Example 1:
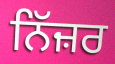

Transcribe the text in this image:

ਨਿੱਜ਼ਰ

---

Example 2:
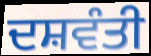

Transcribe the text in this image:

ਦਸ਼ਵੰਤੀ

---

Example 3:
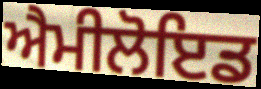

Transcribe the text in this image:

ਐਮੀਲੋਇਡ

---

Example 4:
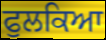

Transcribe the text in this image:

ਫੁਲਕਿਆ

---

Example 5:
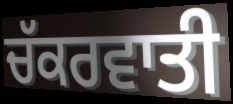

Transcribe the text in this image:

ਚੱਕਰਵਾਤੀ